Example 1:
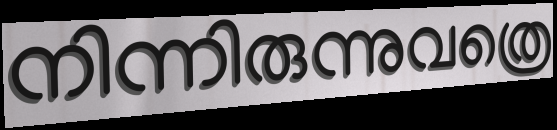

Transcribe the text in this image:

നിന്നിരുന്നുവത്രെ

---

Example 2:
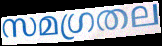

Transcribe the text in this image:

സമഗ്രതല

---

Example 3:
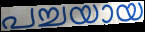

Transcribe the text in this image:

പച്ചയായ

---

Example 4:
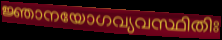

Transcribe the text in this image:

ജ്ഞാനയോഗവ്യവസ്ഥിതിഃ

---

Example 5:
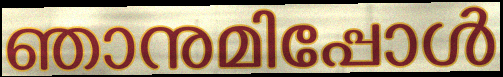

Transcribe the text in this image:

ഞാനുമിപ്പോൾ